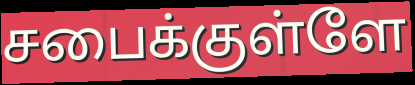
சபைக்குள்ளே